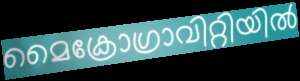
മൈക്രോഗ്രാവിറ്റിയിൽ